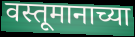
वस्तूमानाच्या